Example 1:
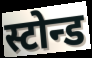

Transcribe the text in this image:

स्टोन्ड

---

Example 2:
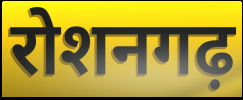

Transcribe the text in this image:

रोशनगढ़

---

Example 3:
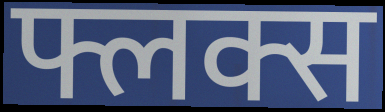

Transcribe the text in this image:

फ्लक्स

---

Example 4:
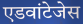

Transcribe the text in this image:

एडवांटेजेस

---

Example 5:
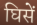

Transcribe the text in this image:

घिसें